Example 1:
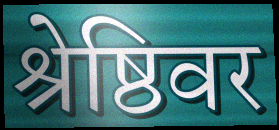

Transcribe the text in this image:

श्रेष्ठिवर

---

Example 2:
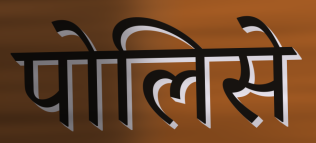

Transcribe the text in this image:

पोलिसे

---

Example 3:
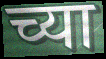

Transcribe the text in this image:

च्या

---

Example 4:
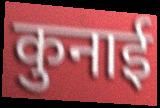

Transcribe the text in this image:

कुनाई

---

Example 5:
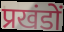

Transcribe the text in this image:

प्रखंडों